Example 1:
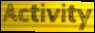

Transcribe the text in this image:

Activity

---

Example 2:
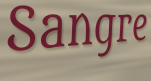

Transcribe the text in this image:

Sangre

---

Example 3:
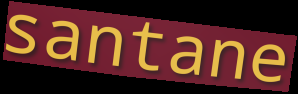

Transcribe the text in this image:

santane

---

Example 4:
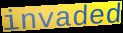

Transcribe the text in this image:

invaded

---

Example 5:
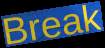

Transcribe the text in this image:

Break